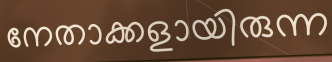
നേതാക്കളായിരുന്ന